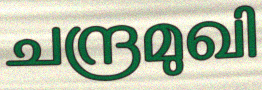
ചന്ദ്രമുഖി